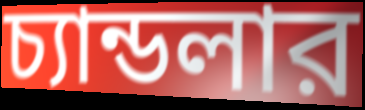
চ্যান্ডলার